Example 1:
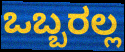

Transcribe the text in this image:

ಒಬ್ಬರಲ್ಲ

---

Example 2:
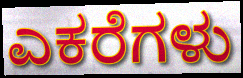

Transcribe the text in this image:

ಎಕರೆಗಳು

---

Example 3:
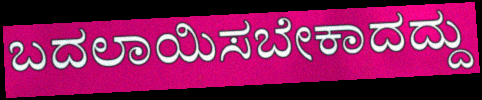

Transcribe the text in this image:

ಬದಲಾಯಿಸಬೇಕಾದದ್ದು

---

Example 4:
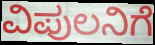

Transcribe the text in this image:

ವಿಪುಲನಿಗೆ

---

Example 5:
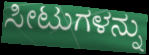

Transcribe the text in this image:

ಸೀಟುಗಳನ್ನು